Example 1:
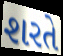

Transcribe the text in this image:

શરતે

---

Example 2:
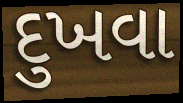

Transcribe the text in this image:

દુખવા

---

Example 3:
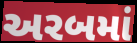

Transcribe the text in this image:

અરબમાં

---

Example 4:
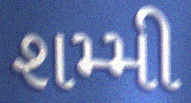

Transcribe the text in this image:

શમ્મી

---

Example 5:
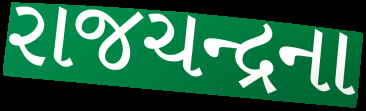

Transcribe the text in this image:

રાજચન્દ્રના